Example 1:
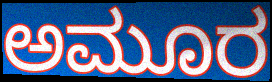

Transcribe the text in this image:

ಅಮೂರ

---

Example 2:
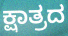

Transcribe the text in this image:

ಕ್ಷಾತ್ರದ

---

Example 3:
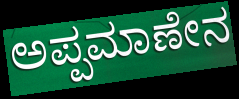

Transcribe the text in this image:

ಅಪ್ಪಮಾಣೇನ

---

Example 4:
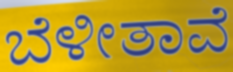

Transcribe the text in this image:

ಬೆಳೀತಾವೆ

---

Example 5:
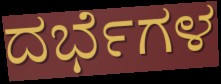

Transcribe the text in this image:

ದರ್ಭೆಗಳ